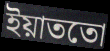
ইয়াততো